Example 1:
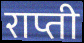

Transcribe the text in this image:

राप्ती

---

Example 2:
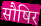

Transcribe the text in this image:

सौषिर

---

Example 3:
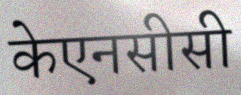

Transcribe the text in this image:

केएनसीसी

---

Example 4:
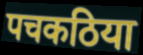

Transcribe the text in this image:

पचकठिया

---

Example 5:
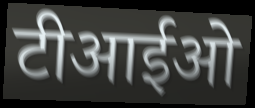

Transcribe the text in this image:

टीआईओ